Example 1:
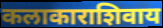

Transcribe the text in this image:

कलाकाराशिवाय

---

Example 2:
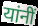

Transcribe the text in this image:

यांनीं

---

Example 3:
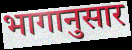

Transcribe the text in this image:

भागानुसार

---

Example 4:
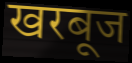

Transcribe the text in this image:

खरबूज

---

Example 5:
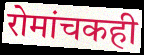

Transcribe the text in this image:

रोमांचकही